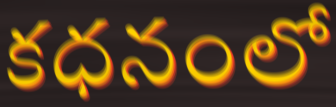
కధనంలో